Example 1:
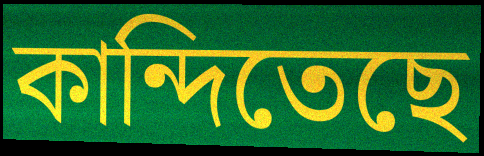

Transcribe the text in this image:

কান্দিতেছে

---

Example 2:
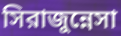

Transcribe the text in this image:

সিরাজুন্নেসা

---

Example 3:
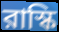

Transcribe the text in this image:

রাস্কি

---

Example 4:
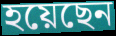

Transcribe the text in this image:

হয়েছেন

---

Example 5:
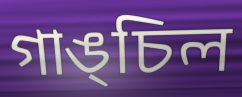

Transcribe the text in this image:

গাঙ্‌চিল